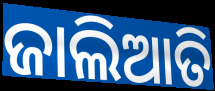
ଜାଲିଆତି